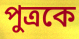
পুত্রকে